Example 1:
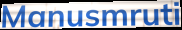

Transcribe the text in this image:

Manusmruti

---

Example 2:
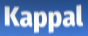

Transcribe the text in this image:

Kappal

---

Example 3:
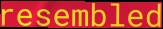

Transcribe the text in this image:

resembled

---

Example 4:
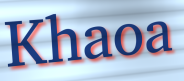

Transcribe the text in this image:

Khaoa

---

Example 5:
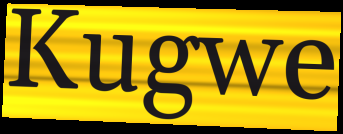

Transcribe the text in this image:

Kugwe